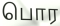
பொர